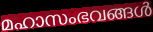
മഹാസംഭവങ്ങൾ